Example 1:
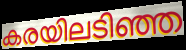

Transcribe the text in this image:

കരയിലടിഞ്ഞ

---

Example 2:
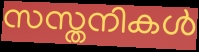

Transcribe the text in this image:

സസ്തനികൾ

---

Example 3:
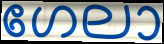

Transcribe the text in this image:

ഗേലാ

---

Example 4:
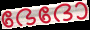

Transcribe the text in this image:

ഭേദോ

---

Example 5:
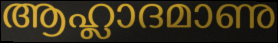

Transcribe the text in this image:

ആഹ്ലാദമാണു